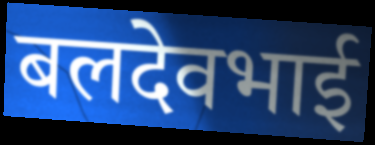
बलदेवभाई